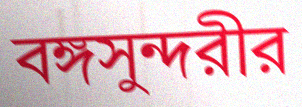
বঙ্গসুন্দরীর